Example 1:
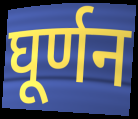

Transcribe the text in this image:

घूर्णन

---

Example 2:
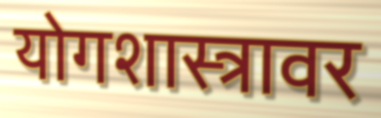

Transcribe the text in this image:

योगशास्त्रावर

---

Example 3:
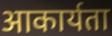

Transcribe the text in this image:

आकार्यता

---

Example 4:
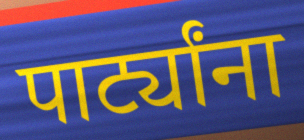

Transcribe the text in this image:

पार्ट्यांना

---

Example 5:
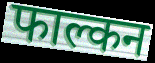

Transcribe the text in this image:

फाल्कन